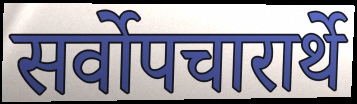
सर्वोपचारार्थे